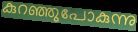
കുറഞ്ഞുപോകുന്നു